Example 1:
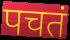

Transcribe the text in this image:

पचतं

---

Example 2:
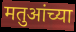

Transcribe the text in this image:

मतुआंच्या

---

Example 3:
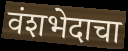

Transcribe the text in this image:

वंशभेदाचा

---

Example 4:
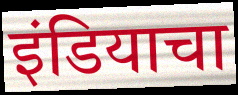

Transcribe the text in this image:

इंडियाचा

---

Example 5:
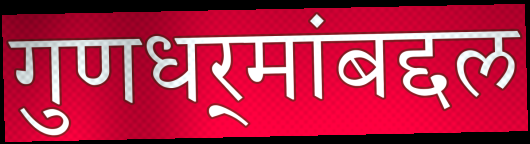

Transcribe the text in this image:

गुणधर्मांबद्दल